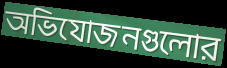
অভিযোজনগুলোর